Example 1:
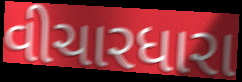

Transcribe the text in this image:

વીચારધારા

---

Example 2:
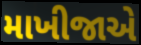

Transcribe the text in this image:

માખીજાએ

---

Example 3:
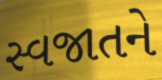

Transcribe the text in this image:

સ્વજાતને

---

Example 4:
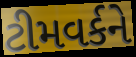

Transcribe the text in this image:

ટીમવર્કને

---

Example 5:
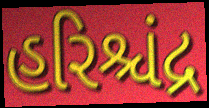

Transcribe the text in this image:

હરિશ્ચંદ્ર